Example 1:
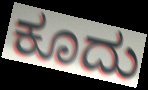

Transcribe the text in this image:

ಕೂದು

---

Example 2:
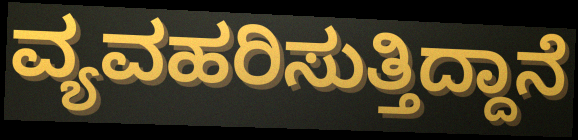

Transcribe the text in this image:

ವ್ಯವಹರಿಸುತ್ತಿದ್ದಾನೆ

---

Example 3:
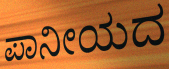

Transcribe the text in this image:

ಪಾನೀಯದ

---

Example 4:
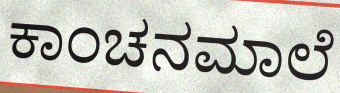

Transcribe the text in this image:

ಕಾಂಚನಮಾಲೆ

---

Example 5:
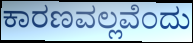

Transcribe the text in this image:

ಕಾರಣವಲ್ಲವೆಂದು